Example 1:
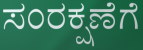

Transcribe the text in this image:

ಸಂರಕ್ಷಣೆಗೆ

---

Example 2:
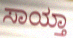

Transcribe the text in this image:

ಸಾಯ್ತಾ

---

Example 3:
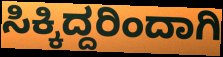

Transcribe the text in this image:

ಸಿಕ್ಕಿದ್ದರಿಂದಾಗಿ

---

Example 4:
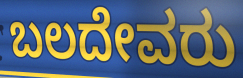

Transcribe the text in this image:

ಬಲದೇವರು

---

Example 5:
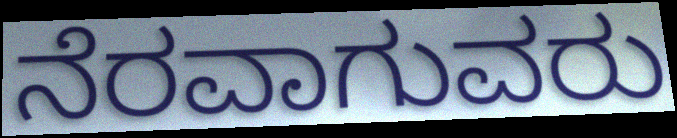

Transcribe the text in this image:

ನೆರವಾಗುವರು